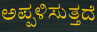
ಅಪ್ಪಳಿಸುತ್ತದೆ